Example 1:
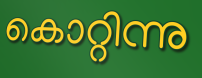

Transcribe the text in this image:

കൊറ്റിന്നു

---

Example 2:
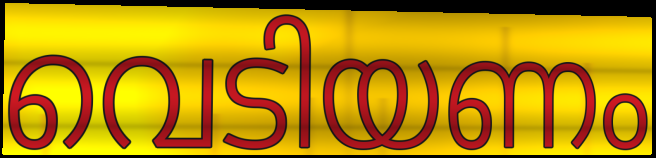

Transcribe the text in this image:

വെടിയണം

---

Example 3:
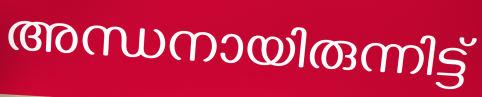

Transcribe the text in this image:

അന്ധനായിരുന്നിട്ട്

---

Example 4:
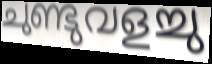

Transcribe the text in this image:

ചുണ്ടുവളച്ചു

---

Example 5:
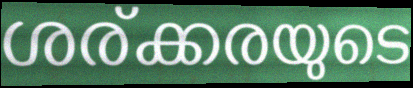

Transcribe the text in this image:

ശര്ക്കരയുടെ